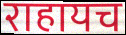
राहायच